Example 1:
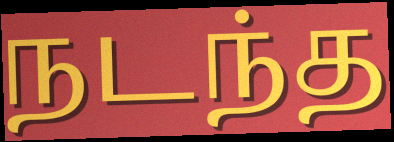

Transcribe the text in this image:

நடந்த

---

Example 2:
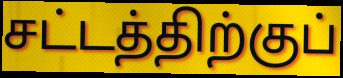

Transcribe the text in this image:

சட்டத்திற்குப்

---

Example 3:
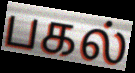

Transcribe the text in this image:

பகல்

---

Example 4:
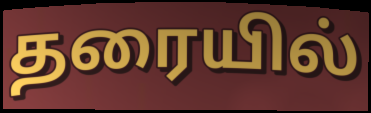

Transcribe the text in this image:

தரையில்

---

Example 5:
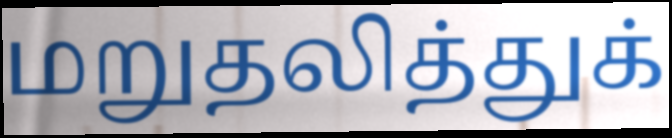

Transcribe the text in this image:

மறுதலித்துக்